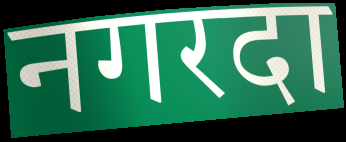
नगरदा